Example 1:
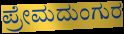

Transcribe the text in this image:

ಪ್ರೇಮದುಂಗುರ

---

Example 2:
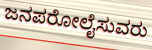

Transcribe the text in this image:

ಜನಪರೋಲೈಸುವರು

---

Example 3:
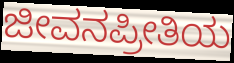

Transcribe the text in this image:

ಜೀವನಪ್ರೀತಿಯ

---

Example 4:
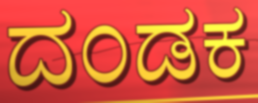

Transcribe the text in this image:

ದಂಡಕ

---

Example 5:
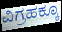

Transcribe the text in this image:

ವಿಗ್ರಹಕ್ಕೂ